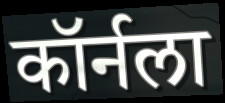
कॉर्नला